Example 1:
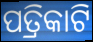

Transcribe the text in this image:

ପତ୍ରିକାଟି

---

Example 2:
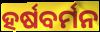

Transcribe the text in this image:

ହର୍ଷବର୍ମନ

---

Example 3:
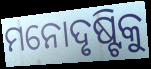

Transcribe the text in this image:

ମନୋଦୃଷ୍ଟିକୁ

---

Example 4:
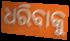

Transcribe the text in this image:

ଧରିବାକୁ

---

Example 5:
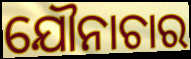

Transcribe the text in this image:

ଯୌନାଚାର